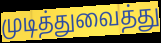
முடித்துவைத்து